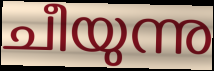
ചീയുന്നു